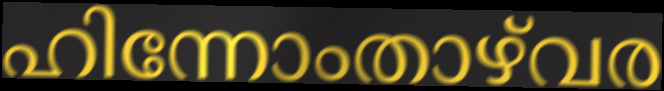
ഹിന്നോംതാഴ്‌വര